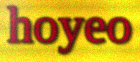
hoyeo